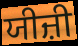
ਯੀਜ਼ੀ